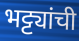
भट्ट्यांची